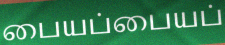
பையப்பையப்